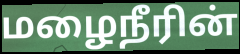
மழைநீரின்